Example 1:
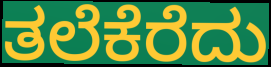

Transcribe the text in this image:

ತಲೆಕೆರೆದು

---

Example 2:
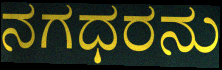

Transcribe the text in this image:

ನಗಧರನು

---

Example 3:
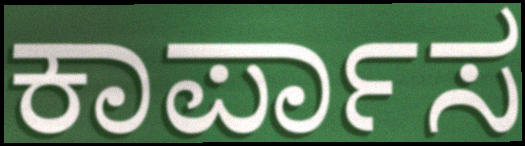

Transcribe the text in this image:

ಕಾರ್ಪಾಸ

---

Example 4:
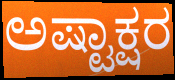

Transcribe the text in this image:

ಅಷ್ಟಾಕ್ಷರ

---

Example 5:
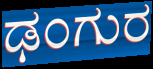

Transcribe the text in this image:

ಢಂಗುರ